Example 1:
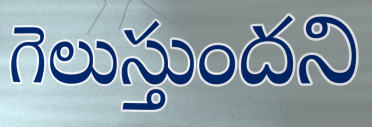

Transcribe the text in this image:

గెలుస్తుందని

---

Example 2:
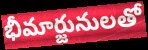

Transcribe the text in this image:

భీమార్జునులతో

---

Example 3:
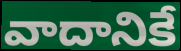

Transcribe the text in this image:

వాదానికే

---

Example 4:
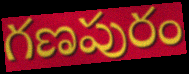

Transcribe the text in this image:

గణపురం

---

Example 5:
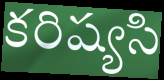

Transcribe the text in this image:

కరిష్యసి